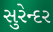
સુરેન્દર